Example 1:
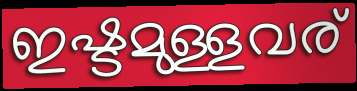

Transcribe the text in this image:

ഇഷ്ടമുള്ളവര്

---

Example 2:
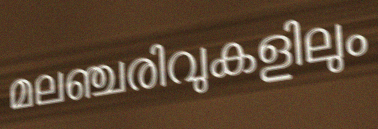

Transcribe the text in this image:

മലഞ്ചരിവുകളിലും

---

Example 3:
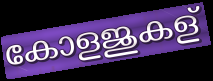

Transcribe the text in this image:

കോളജുകള്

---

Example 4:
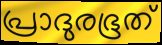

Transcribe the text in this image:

പ്രാദുരഭൂത്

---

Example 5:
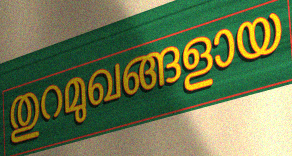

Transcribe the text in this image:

തുറമുഖങ്ങളായ